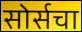
सोर्सचा